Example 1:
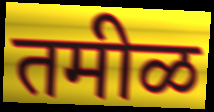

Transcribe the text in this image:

तमीळ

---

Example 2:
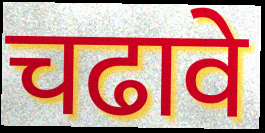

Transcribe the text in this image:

चढावे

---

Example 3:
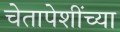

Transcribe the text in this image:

चेतापेशींच्या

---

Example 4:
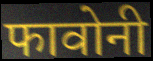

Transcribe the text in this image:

फावोनी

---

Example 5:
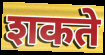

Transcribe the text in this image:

शकते